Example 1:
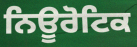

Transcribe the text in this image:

ਨਿਊਰੋਟਿਕ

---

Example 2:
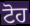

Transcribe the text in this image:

ਟੋਹ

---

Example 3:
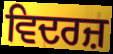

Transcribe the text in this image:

ਵਿਦਰਜ਼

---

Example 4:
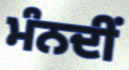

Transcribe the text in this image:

ਮੰਨਦੀਂ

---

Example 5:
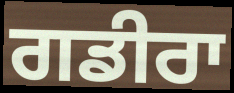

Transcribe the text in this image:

ਗਡੀਰਾ